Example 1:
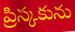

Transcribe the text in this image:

ప్రిస్కకును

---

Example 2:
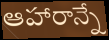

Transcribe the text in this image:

ఆహారాన్నే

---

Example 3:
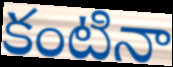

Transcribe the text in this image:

కంటినా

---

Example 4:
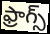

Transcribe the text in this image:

ఫ్రాగ్స్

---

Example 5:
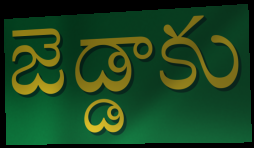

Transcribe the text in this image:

జెడ్డాకు